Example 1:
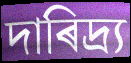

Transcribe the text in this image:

দাৰিদ্ৰ্য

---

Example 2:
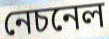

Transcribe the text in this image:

নেচনেল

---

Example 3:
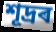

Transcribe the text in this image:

শূদ্ৰৰ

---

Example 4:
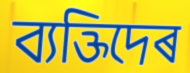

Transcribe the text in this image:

ব্যক্তিদেৰ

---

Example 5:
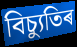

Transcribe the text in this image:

বিচ্যুতিৰ